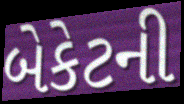
બેકેટની